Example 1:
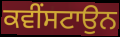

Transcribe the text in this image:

ਕਵੀਂਸਟਾਉਨ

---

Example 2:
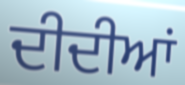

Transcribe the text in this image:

ਦੀਦੀਆਂ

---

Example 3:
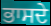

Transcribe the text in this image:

ਭਾਸਦੇ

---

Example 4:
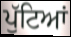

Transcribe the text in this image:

ਪੁੱਟਿਆਂ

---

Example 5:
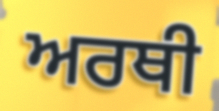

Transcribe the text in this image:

ਅਰਥੀ